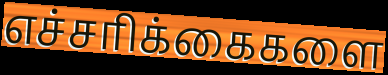
எச்சரிக்கைகளை